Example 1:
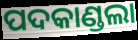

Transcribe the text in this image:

ପଦକାଣ୍ଡଲା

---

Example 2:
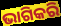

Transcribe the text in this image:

ଭାଗିକରି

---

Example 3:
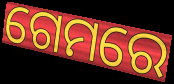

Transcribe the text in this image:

ଗେମରେ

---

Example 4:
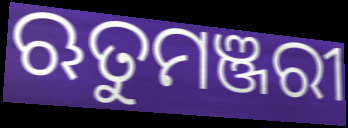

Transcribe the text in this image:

ଋତୁମଞ୍ଜରୀ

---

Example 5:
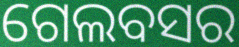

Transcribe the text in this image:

ଗେଲବସର